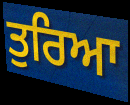
ਤੁਰਿਆ